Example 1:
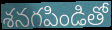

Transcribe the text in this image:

శనగపిండితో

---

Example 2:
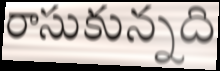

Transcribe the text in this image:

రాసుకున్నది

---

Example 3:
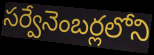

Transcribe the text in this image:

సర్వేనెంబర్లలోని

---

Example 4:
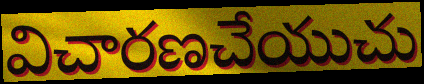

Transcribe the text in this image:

విచారణచేయుచు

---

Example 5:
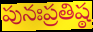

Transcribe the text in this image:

పునఃప్రతిష్ఠ